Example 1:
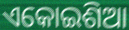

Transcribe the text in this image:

ଏକୋଇଶିଆ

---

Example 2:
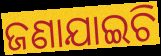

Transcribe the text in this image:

ଜଣାଯାଇଚି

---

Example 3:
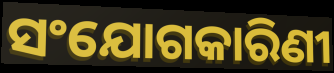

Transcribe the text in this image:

ସଂଯୋଗକାରିଣୀ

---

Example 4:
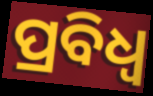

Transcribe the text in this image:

ପ୍ରବିଧ୍ଵ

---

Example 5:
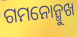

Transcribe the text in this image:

ଗମନୋନ୍ମୁଖ